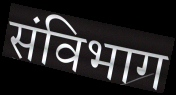
संविभाग